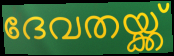
ദേവതയ്ക്ക്